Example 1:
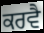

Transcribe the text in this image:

ਕਰਵੈ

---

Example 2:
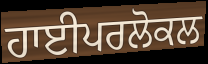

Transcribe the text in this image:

ਹਾਈਪਰਲੋਕਲ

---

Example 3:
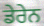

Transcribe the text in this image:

ਡੇਰੇਨ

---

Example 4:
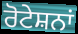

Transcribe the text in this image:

ਰੋਟੇਸ਼ਨਾਂ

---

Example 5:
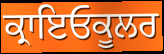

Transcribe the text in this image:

ਕ੍ਰਾਇਓਕੂਲਰ